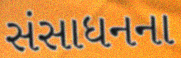
સંસાધનના